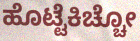
ಹೊಟ್ಟೆಕಿಚ್ಚೋ